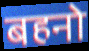
बहनो